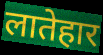
लातेहार